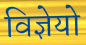
विज्ञेयो